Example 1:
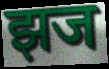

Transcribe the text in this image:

झज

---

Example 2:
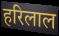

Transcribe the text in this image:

हरिलाल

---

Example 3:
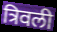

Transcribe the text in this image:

त्रिवली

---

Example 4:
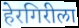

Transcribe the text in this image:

हेरगिरीला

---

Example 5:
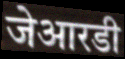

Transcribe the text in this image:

जेआरडी